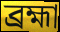
ব্রহ্মা